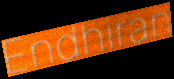
Endhiran